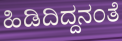
ಹಿಡಿದಿದ್ದನಂತೆ